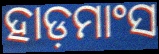
ହାଡ଼ମାଂସ